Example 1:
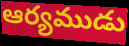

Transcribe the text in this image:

ఆర్యముడు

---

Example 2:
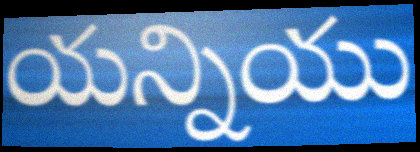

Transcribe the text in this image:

యన్నియు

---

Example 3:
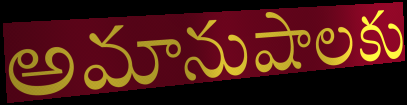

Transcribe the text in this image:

అమానుషాలకు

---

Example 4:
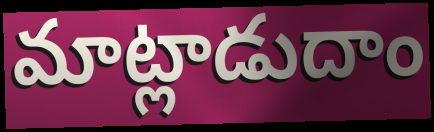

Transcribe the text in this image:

మాట్లాడుదాం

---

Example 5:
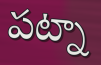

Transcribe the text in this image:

పట్నా